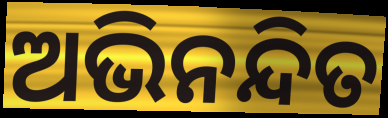
ଅଭିନନ୍ଦିତ